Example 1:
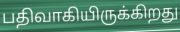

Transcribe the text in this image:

பதிவாகியிருக்கிறது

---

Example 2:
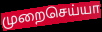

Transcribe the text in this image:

முறைசெய்யா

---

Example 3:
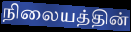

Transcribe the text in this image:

நிலையத்தின்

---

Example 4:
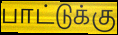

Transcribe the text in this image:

பாட்டுக்கு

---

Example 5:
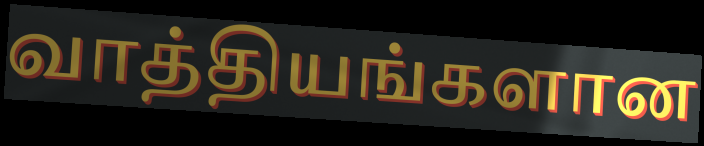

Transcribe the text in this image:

வாத்தியங்களான